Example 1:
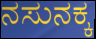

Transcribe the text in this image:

ನಸುನಕ್ಕ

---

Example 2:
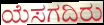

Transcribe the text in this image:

ಯೆಸಗದಿರು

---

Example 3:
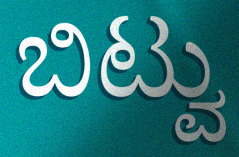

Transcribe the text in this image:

ಬಿಟ್ವು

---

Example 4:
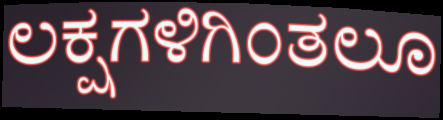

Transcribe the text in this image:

ಲಕ್ಷಗಳಿಗಿಂತಲೂ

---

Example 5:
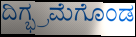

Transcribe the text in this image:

ದಿಗ್ಭ್ರಮೆಗೊಂಡ